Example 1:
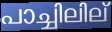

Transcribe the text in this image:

പാച്ചിലില്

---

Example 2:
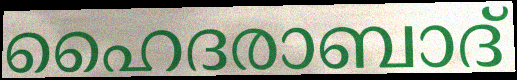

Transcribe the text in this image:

ഹൈദരാബാദ്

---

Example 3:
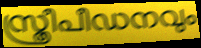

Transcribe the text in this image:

സ്ത്രീപീഡനവും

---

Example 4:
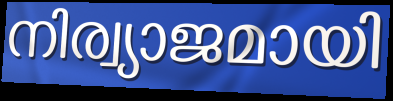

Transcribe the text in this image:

നിര്വ്യാജമായി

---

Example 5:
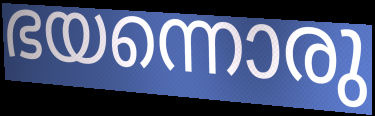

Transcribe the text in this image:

ഭയന്നൊരു